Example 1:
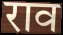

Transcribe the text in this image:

राव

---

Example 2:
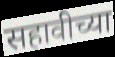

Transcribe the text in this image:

सहावीच्या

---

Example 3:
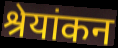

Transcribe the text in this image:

श्रेयांकन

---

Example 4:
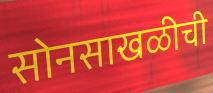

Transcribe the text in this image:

सोनसाखळीची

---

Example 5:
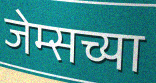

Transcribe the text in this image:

जेम्सच्या